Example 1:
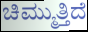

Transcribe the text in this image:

ಚಿಮ್ಮುತ್ತಿದೆ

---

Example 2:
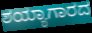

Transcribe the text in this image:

ಶಯ್ಯಾಗಾರದ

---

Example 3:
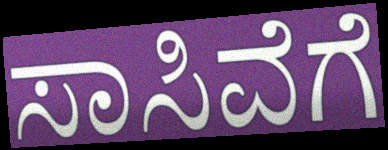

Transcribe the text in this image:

ಸಾಸಿವೆಗೆ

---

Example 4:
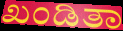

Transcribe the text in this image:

ಖಂಡಿತಾ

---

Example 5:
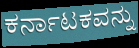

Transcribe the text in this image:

ಕರ್ನಾಟಕವನ್ನು